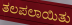
ತಲಪಲಾಯಿತು